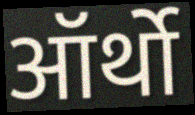
ऑर्थो